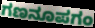
ಗಣನೂಪಗಂ